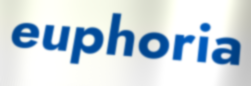
euphoria